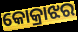
କୋକ୍ରାଝର